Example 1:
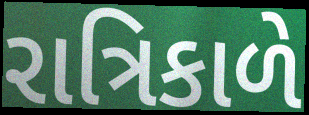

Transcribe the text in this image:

રાત્રિકાળે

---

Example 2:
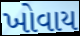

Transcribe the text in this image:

ખોવાય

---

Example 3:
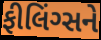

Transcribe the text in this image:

ફીલિંગ્સને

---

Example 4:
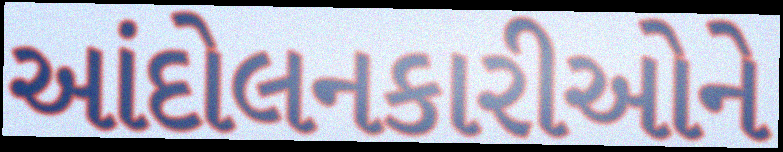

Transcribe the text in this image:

આંદોલનકારીઓને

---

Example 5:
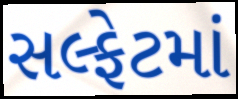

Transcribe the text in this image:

સલ્ફેટમાં